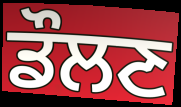
ਡੌਲਣ